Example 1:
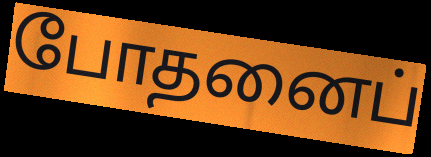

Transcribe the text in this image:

போதனைப்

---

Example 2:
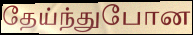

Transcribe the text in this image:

தேய்ந்துபோன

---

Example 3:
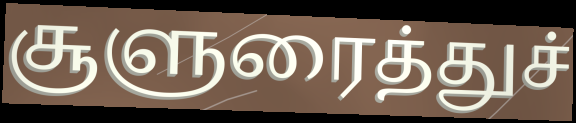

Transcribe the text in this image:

சூளுரைத்துச்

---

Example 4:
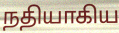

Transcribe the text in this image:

நதியாகிய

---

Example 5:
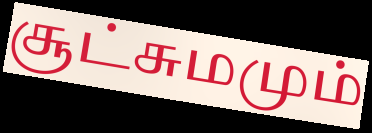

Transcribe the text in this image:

சூட்சுமமும்